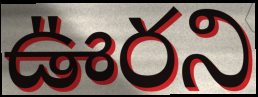
ఊరని